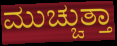
ಮುಚ್ಚುತ್ತಾ